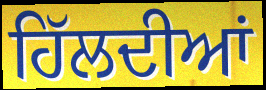
ਹਿੱਲਦੀਆਂ